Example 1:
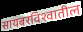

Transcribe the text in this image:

सायबरविश्वातील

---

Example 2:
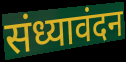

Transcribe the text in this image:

संध्यावंदन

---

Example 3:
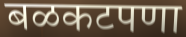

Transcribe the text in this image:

बळकटपणा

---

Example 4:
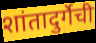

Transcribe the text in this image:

शांतादुर्गेची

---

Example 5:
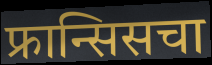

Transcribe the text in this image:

फ्रान्सिसचा